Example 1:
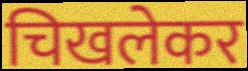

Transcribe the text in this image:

चिखलेकर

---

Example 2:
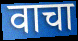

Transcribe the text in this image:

वाचा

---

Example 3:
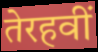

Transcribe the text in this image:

तेरहवीं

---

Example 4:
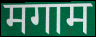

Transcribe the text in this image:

मगाम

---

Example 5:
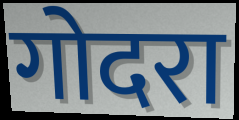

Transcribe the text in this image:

गोदरा